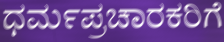
ಧರ್ಮಪ್ರಚಾರಕರಿಗೆ